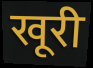
खूरी